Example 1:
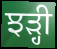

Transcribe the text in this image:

ਝੜ੍ਹੀ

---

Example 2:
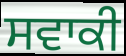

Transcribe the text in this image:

ਸਵਾਕੀ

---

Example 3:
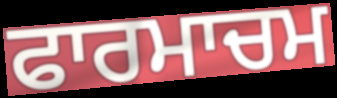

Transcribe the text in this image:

ਫਾਰਮਾਚਮ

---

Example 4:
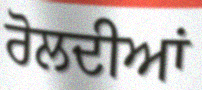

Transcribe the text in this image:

ਰੋਲਦੀਆਂ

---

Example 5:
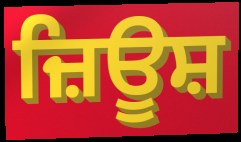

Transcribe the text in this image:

ਜ਼ਿਊਸ਼